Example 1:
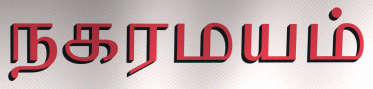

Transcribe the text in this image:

நகரமயம்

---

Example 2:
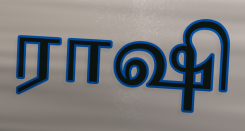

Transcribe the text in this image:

ராஷி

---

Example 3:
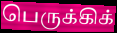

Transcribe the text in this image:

பெருக்கிக்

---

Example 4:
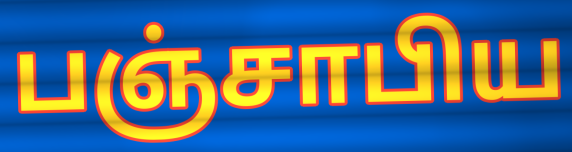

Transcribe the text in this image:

பஞ்சாபிய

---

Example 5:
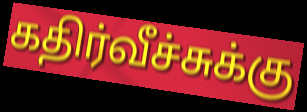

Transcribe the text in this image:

கதிர்வீச்சுக்கு